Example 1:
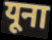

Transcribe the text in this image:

यूना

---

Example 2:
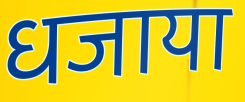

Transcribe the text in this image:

धजाया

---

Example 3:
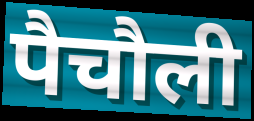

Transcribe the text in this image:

पैचौली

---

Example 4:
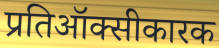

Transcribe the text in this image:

प्रतिऑक्सीकारक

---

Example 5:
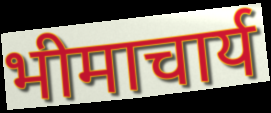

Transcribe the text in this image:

भीमाचार्य